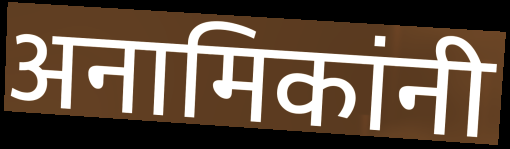
अनामिकांनी